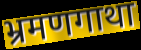
भ्रमणगाथा